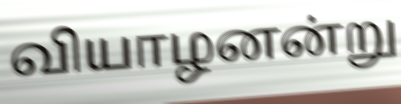
வியாழனன்று